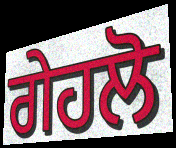
ਗੇਹਲੋ